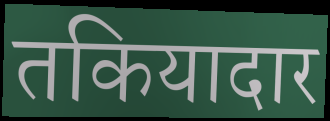
तकियादार